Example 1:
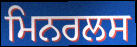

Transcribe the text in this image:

ਮਿਨਰਲਸ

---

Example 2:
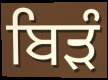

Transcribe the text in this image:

ਬਿੜੰ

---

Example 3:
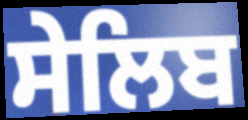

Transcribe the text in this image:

ਸੇਲਿਬ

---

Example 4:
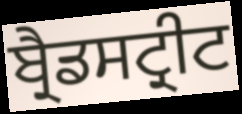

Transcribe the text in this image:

ਬ੍ਰੈਡਸਟ੍ਰੀਟ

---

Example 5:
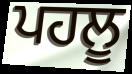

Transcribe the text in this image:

ਪਹਲੂ